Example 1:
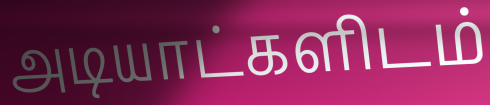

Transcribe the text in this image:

அடியாட்களிடம்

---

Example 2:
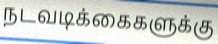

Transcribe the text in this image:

நடவடிக்கைகளுக்கு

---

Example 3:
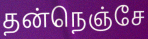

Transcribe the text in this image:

தன்நெஞ்சே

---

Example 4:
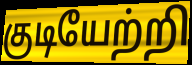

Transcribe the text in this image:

குடியேற்றி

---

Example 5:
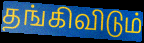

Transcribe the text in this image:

தங்கிவிடும்